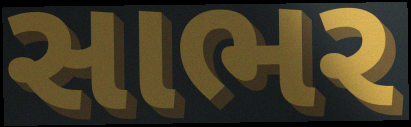
સાભર